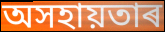
অসহায়তাৰ